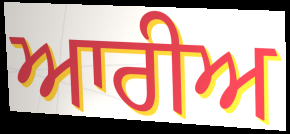
ਆਰੀਅ